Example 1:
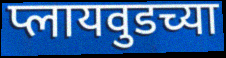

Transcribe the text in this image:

प्लायवुडच्या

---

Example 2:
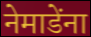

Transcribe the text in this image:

नेमाडेंना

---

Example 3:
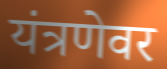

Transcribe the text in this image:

यंत्रणेवर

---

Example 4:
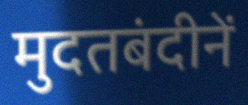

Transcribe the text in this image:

मुदतबंदीनें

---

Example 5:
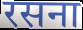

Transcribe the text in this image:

रसना